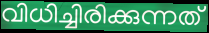
വിധിച്ചിരിക്കുന്നത്